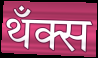
थँक्स